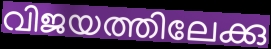
വിജയത്തിലേക്കു